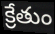
క్రేతుం